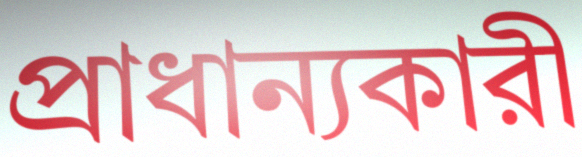
প্রাধান্যকারী